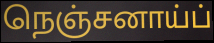
நெஞ்சனாய்ப்